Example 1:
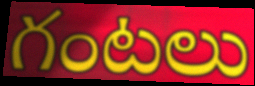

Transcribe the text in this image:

గంటలు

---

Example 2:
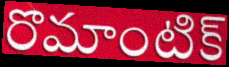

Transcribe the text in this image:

రొమాంటిక్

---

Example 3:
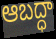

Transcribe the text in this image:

ఆబద్ధా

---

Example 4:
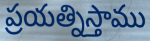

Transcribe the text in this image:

ప్రయత్నిస్తాము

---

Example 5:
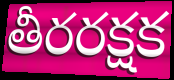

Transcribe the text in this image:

తీరరక్షక